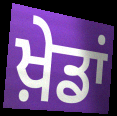
ਖ਼ੇਡਾਂ